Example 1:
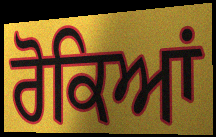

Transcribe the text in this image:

ਰੋਕਿਆਂ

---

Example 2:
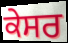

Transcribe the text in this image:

ਕੇਸਰ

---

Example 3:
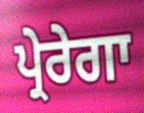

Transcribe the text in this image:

ਪ੍ਰੇਰੇਗਾ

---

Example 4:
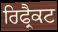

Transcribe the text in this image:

ਰਿਫ੍ਰੈਕਟ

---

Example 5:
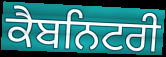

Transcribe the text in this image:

ਕੈਬਨਿਟਰੀ